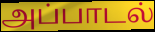
அப்பாடல்